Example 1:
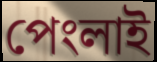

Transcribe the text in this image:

পেংলাই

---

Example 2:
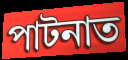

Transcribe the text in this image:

পাটনাত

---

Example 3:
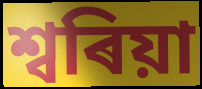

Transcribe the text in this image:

শ্বৰিয়া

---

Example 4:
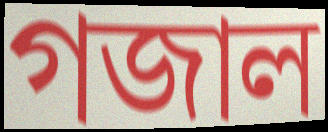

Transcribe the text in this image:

গজাল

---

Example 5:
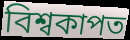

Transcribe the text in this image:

বিশ্বকাপত